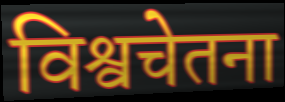
विश्वचेतना